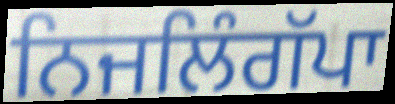
ਨਿਜਲਿੰਗੱਪਾ